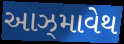
આઝ્માવેથ